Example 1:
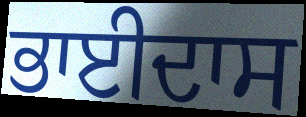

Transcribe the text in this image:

ਭਾਈਦਾਸ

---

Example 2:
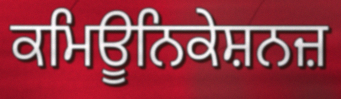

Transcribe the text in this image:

ਕਮਿਊਨਿਕੇਸ਼ਨਜ਼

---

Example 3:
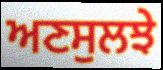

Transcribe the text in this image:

ਅਣਸੁਲਝੇ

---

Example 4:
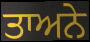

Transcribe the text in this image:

ਤਾਅਨੇ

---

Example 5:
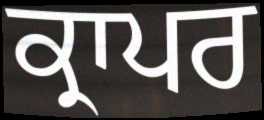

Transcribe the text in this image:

ਕ੍ਰਾਪਰ